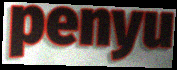
penyu